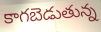
కాగబెడుతున్న